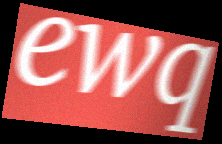
ewq